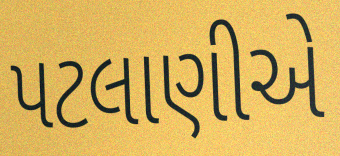
પટલાણીએ